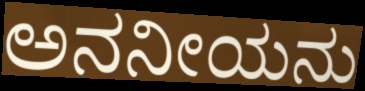
ಅನನೀಯನು